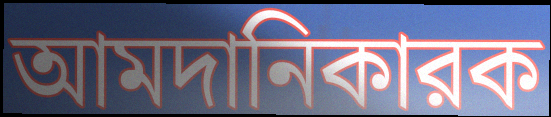
আমদানিকারক